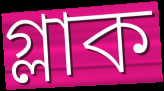
গ্লাক